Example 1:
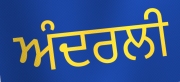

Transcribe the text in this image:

ਅੰਦਰਲੀ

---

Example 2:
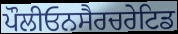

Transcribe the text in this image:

ਪੌਲੀਓਨਸੈਰਚਰੇਟਿਡ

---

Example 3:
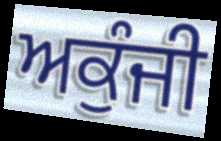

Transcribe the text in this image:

ਅਕੁੰਜੀ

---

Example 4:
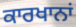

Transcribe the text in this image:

ਕਾਰਖਾਨਾਂ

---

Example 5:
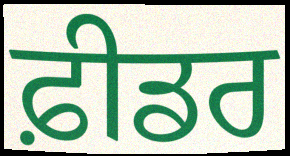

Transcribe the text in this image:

ਫ਼ੀਡਰ